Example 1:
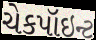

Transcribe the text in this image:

ચેકપૉઇન્ટ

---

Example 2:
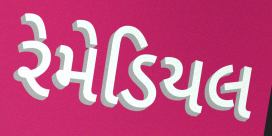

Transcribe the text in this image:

રેમેડિયલ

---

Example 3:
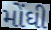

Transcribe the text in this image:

મોંઘી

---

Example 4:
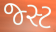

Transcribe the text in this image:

જ્સ્ટ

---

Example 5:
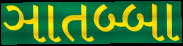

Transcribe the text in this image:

ઞાતબ્બા